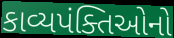
કાવ્યપંક્તિઓનો